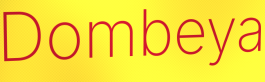
Dombeya